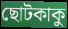
ছোটকাকু